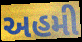
અહમી